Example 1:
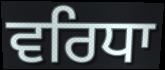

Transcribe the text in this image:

ਵਰਿਧਾ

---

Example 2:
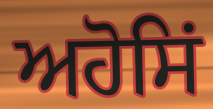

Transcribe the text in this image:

ਅਹੋਸਿਂ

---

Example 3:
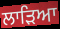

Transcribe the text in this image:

ਲਾੜਿਆ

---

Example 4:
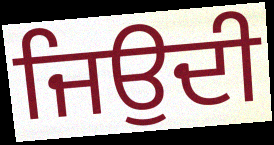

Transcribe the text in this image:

ਜਿਉਦੀ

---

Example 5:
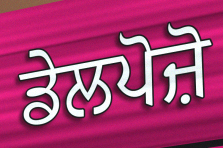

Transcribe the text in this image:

ਡੇਲਪੋਜ਼ੋ